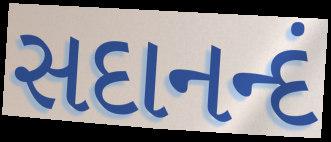
સદાનન્દં